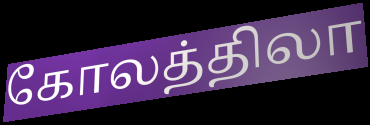
கோலத்திலா